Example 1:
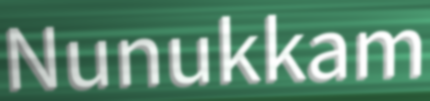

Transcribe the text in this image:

Nunukkam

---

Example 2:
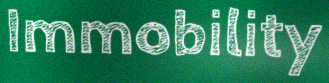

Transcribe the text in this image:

Immobility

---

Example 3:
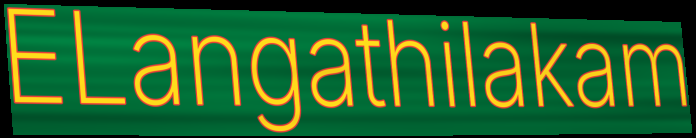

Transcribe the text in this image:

ELangathilakam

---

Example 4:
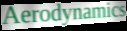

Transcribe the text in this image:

Aerodynamics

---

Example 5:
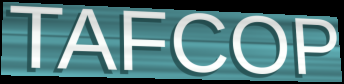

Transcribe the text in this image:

TAFCOP